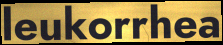
leukorrhea